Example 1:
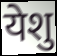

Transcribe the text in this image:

येशु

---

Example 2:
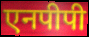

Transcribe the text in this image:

एनपीपी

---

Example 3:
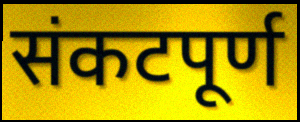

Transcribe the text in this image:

संकटपूर्ण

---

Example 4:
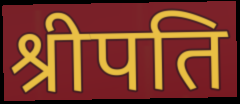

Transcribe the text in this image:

श्रीपति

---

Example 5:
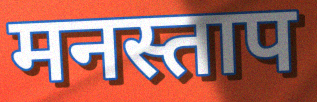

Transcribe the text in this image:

मनस्ताप